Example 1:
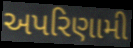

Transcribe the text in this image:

અપરિણામી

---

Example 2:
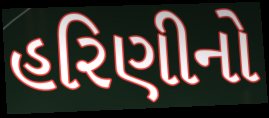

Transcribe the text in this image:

હરિણીનો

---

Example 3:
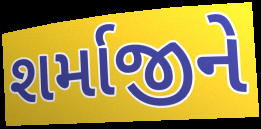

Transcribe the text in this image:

શર્માજીને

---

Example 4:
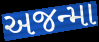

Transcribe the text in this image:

અજન્મા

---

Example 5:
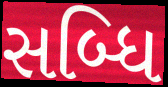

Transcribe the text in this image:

સબ્ધિ